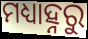
ମଧ୍ୟାହ୍ନରୁ